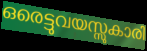
ഒരെട്ടുവയസ്സുകാരി